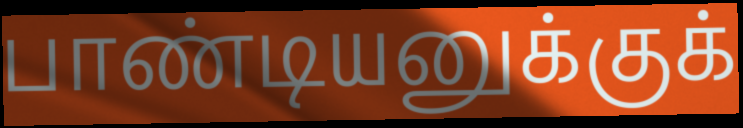
பாண்டியனுக்குக்